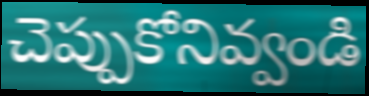
చెప్పుకోనివ్వండి